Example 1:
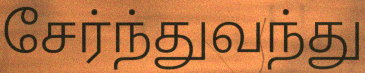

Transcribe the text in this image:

சேர்ந்துவந்து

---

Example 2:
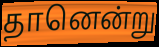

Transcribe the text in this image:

தானென்று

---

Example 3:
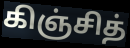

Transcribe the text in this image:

கிஞ்சித்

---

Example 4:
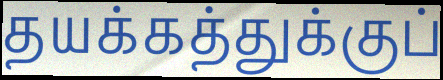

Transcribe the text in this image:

தயக்கத்துக்குப்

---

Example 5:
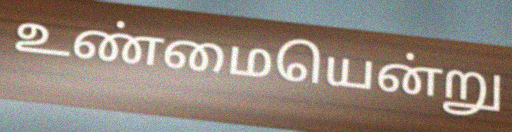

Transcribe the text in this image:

உண்மையென்று